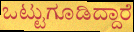
ಒಟ್ಟುಗೂಡಿದ್ದಾರೆ